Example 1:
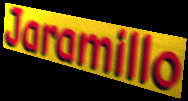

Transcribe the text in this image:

Jaramillo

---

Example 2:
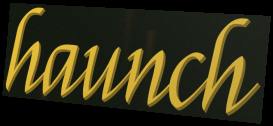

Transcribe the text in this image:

haunch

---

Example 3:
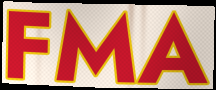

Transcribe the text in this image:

FMA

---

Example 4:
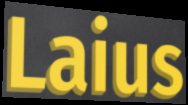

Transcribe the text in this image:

Laius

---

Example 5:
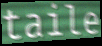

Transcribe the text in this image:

taile